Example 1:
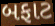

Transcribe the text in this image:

બફાટ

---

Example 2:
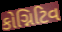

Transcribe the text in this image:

કોગ્નિટિવ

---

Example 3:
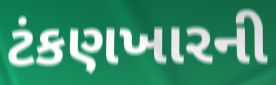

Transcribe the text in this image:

ટંકણખારની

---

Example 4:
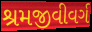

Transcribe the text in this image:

શ્રમજીવીવર્ગ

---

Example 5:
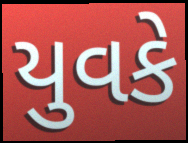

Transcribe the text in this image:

યુવકે